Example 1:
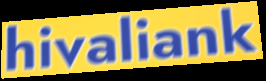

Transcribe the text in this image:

hivaliank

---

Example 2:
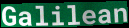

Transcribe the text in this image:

Galilean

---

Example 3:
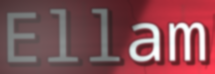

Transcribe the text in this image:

Ellam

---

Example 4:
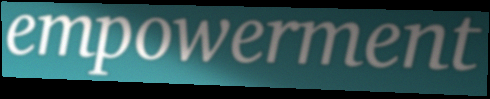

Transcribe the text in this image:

empowerment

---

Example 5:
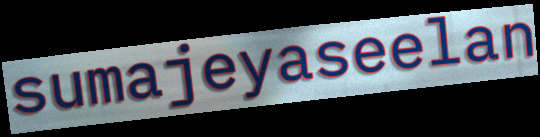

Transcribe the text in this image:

sumajeyaseelan